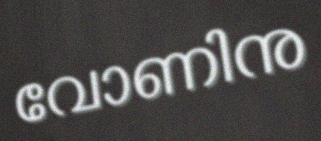
വോണിനു